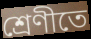
শ্রেণীতে